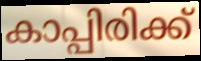
കാപ്പിരിക്ക്